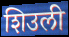
शिउली